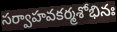
సర్వాహవకర్మశోభినః